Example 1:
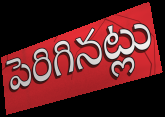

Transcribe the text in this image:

పెరిగినట్లు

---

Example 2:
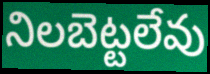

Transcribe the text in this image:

నిలబెట్టలేవు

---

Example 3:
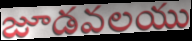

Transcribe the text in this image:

జూడవలయు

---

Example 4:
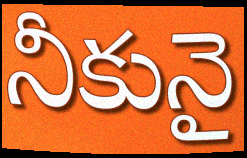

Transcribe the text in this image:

నీకునై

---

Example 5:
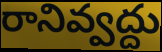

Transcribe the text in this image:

రానివ్వద్దు